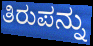
ತಿರುಪನ್ನು